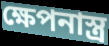
ক্ষেপনাস্ত্র